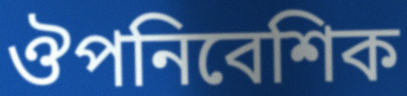
ঔপনিবেশিক